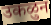
उकळुन